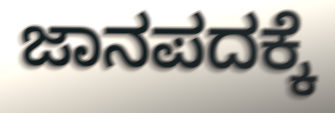
ಜಾನಪದಕ್ಕೆ